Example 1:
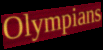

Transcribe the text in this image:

Olympians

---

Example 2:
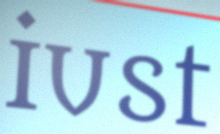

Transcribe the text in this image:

iust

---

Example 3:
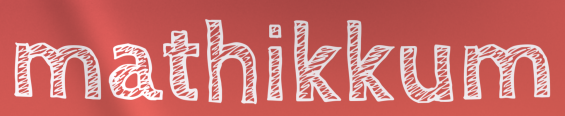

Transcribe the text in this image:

mathikkum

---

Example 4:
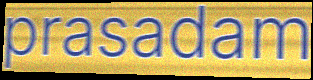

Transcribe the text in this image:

prasadam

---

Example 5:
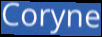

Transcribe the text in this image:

Coryne